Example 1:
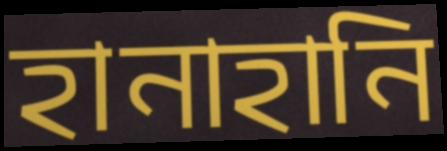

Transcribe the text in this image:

হানাহানি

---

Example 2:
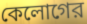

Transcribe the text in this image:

কেলোগের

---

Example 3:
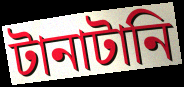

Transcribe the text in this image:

টানাটানি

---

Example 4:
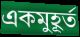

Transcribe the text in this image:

একমুহূর্ত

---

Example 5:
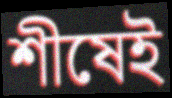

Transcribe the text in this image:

শীষেই